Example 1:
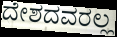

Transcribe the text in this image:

ದೇಶದವರಲ್ಲ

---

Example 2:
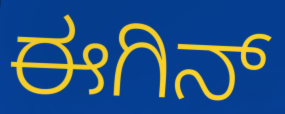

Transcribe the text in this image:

ಈಗಿನ್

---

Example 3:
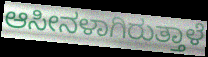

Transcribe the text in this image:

ಆಸೀನಳಾಗಿರುತ್ತಾಳೆ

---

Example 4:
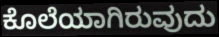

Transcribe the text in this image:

ಕೊಲೆಯಾಗಿರುವುದು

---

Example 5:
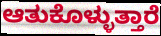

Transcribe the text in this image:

ಆತುಕೊಳ್ಳುತ್ತಾರೆ